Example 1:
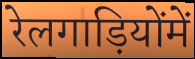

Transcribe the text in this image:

रेलगाड़ियोंमें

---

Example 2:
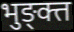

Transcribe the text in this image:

भुङ्क्त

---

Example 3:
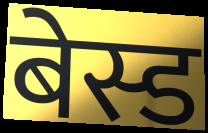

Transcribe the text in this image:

बेस्ड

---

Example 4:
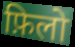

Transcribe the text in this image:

फ़िलो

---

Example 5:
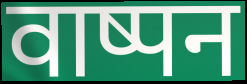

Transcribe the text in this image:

वाष्पन